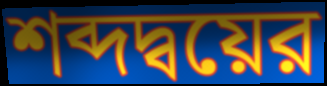
শব্দদ্বয়ের